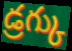
డ్రగ్కు